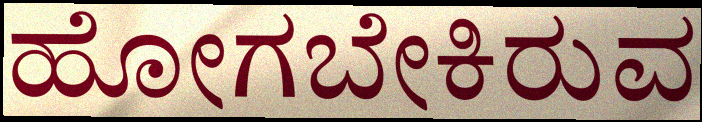
ಹೋಗಬೇಕಿರುವ